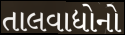
તાલવાદ્યોનો